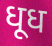
धूध